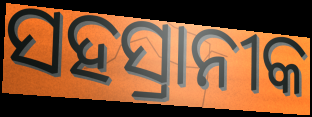
ସହସ୍ରାନୀକ